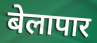
बेलापार